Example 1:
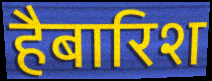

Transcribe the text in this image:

हैबारिश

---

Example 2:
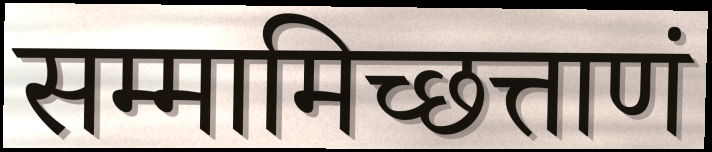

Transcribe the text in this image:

सम्मामिच्छत्ताणं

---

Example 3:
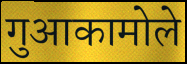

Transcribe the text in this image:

गुआकामोले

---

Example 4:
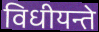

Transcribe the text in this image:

विधीयन्ते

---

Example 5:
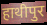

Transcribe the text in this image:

हाथीपुर